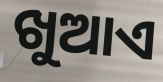
ଖୁଆଏ